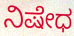
ನಿಷೇಧ